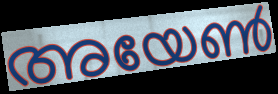
അയേൺ